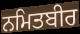
ਨਮਿਤਬੀਰ